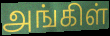
அங்கிள்